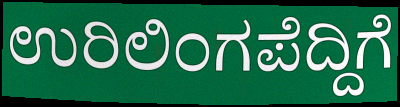
ಉರಿಲಿಂಗಪೆದ್ದಿಗೆ